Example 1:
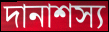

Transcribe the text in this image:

দানাশস্য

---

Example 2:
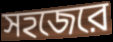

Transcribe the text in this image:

সহজেরে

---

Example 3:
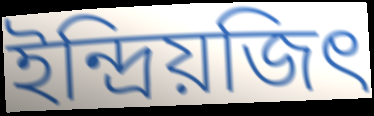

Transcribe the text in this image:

ইন্দ্রিয়জিৎ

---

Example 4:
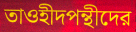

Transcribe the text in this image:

তাওহীদপন্থীদের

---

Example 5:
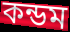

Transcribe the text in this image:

কন্ডম